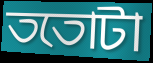
ততোটা